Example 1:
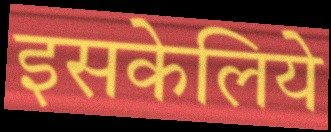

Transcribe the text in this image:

इसकेलिये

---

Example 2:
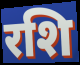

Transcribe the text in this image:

रशि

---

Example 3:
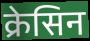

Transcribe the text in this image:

क्रेसिन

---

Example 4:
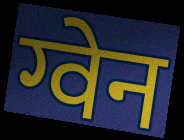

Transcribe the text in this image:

ग्वेन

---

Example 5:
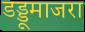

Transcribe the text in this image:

डड्डूमाजरा